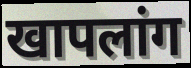
खापलांग